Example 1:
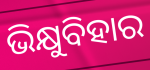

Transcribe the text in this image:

ଭିକ୍ଷୁବିହାର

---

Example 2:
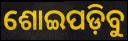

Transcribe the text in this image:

ଶୋଇପଡ଼ିବୁ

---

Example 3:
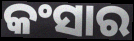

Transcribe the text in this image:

କଂସାର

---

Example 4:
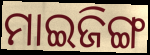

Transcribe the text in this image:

ମାଇଜିଙ୍ଗ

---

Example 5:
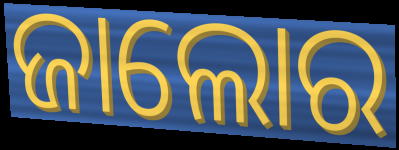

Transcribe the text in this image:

ଜାଲୋର